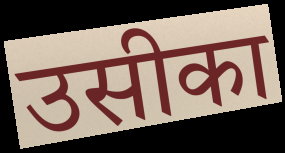
उसीका